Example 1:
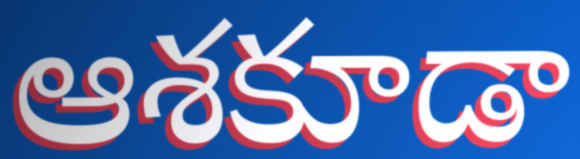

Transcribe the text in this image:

ఆశకూడా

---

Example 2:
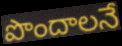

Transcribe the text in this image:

పొందాలనే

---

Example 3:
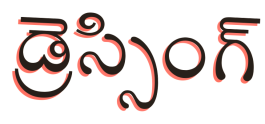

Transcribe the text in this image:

డ్రెస్సింగ్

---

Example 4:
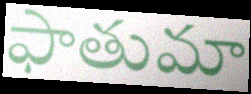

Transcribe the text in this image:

ఫాతుమా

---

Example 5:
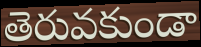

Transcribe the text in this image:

తెరువకుండా